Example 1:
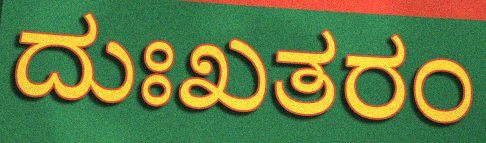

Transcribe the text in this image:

ದುಃಖತರಂ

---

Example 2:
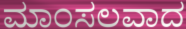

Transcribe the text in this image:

ಮಾಂಸಲವಾದ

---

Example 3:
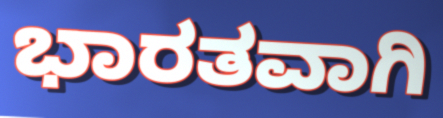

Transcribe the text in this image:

ಭಾರತವಾಗಿ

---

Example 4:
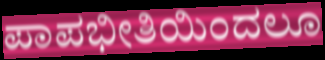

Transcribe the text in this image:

ಪಾಪಭೀತಿಯಿಂದಲೂ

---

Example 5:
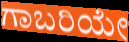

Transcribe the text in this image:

ಗಾಬರಿಯೇ